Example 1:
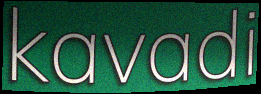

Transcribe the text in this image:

kavadi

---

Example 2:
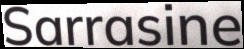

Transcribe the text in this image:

Sarrasine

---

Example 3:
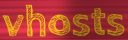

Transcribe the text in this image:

vhosts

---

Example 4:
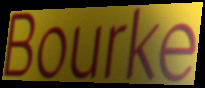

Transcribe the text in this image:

Bourke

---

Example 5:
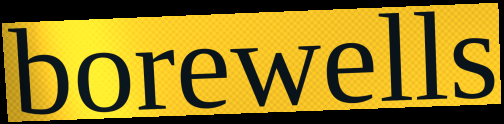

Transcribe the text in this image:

borewells